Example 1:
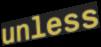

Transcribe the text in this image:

unless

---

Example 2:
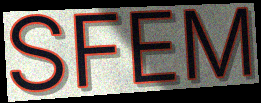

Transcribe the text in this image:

SFEM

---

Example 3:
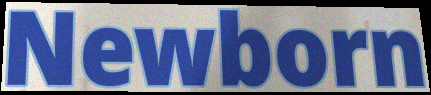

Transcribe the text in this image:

Newborn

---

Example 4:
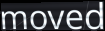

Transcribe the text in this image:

moved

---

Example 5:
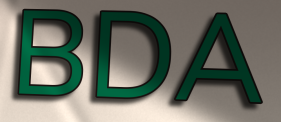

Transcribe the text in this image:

BDA